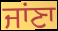
ਜਾਂਣਾ